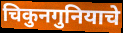
चिकुनगुनियाचे